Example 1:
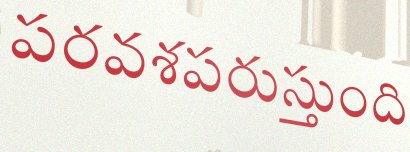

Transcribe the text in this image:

పరవశపరుస్తుంది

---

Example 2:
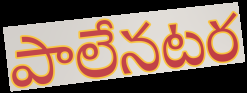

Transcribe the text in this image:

పాలేనటర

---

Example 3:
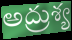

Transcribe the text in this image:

అద్రుశ్య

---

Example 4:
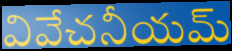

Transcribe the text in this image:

వివేచనీయమ్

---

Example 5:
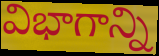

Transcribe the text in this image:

విభాగాన్ని